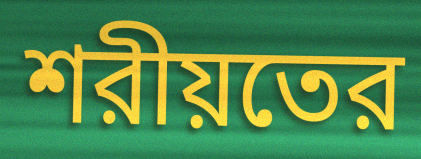
শরীয়তের